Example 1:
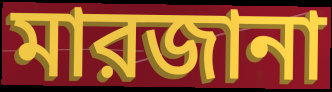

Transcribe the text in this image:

মারজানা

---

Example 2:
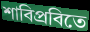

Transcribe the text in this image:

শাবিপ্রবিতে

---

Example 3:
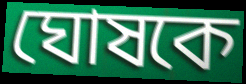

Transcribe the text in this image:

ঘোষকে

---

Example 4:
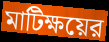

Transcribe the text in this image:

মাটিক্ষয়ের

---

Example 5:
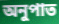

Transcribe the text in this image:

অনুপাত